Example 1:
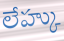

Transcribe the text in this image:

లేహ్కు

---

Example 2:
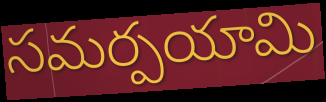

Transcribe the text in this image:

సమర్పయామి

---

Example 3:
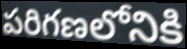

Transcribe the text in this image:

పరిగణలోనికి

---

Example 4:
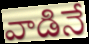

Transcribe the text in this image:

వాడినే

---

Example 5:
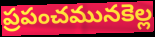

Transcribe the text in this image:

ప్రపంచమునకెల్ల